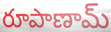
రూపాణామ్